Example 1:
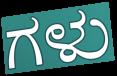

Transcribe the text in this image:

ಗಳು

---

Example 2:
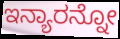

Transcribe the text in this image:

ಇನ್ಯಾರನ್ನೋ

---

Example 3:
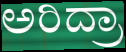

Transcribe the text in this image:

ಅರಿದ್ರಾ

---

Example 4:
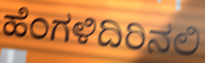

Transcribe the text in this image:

ಹೆಂಗಳಿದಿರಿನಲಿ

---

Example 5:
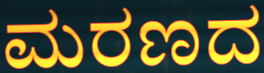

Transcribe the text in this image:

ಮರಣದ